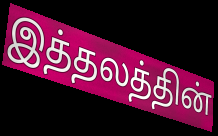
இத்தலத்தின்